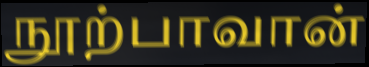
நூற்பாவான்